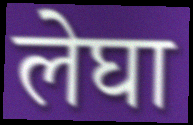
लेघा